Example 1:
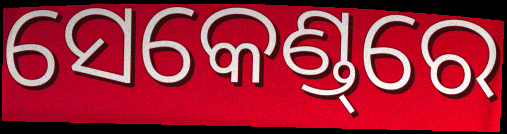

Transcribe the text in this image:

ସେକେଣ୍ଡ୍‌ରେ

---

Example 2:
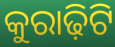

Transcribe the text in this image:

କୁରାଢ଼ିଟି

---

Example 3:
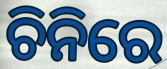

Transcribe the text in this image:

ଚିନିରେ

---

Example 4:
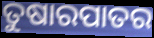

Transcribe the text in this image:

ତୁଷାରପାତର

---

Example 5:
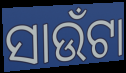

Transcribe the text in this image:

ସାଉଁଟା